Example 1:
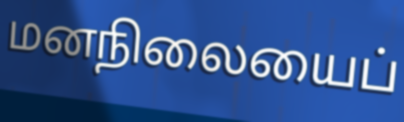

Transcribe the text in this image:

மனநிலையைப்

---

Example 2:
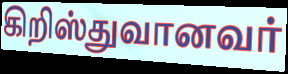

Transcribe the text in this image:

கிறிஸ்துவானவர்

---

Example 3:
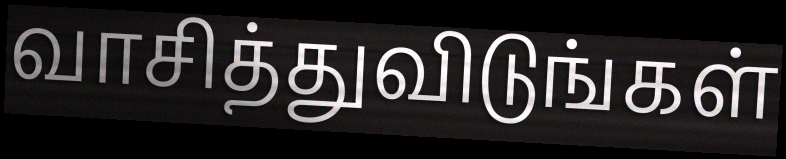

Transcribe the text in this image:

வாசித்துவிடுங்கள்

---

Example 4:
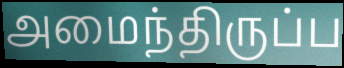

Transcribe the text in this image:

அமைந்திருப்ப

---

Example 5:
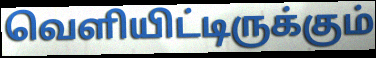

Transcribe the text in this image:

வெளியிட்டிருக்கும்